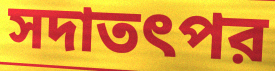
সদাতৎপর